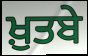
ਖ਼ੁਤਬੇ